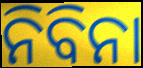
ନିବିନା